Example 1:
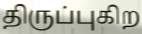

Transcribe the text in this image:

திருப்புகிற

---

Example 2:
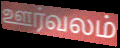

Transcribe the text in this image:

ஊர்வலம்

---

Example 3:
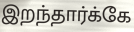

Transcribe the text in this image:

இறந்தார்க்கே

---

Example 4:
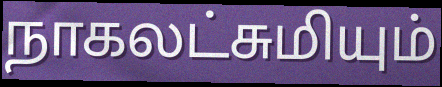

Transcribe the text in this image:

நாகலட்சுமியும்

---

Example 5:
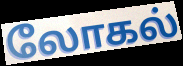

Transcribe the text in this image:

லோகல்